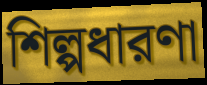
শিল্পধারণা